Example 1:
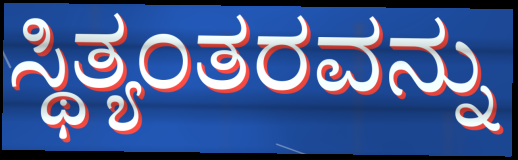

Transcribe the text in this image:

ಸ್ಥಿತ್ಯಂತರವನ್ನು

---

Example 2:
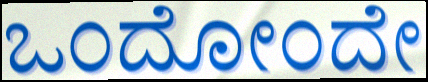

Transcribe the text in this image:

ಒಂದೋಂದೇ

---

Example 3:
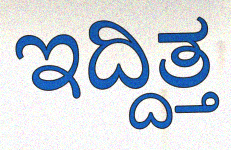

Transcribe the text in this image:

ಇದ್ದಿತ್ತ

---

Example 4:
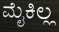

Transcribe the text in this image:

ಮೈಕಿಲ್ಲ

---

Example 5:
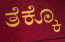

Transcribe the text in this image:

ತೆಕ್ಕೊ